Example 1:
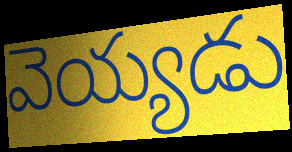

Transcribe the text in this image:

వెయ్యడు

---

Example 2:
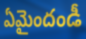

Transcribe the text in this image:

ఏమైందండీ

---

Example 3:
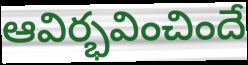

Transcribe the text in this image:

ఆవిర్భవించిందే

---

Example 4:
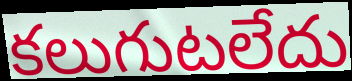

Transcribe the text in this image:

కలుగుటలేదు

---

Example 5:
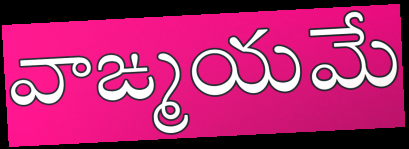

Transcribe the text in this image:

వాఙ్మయమే